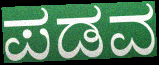
ಪಡವ